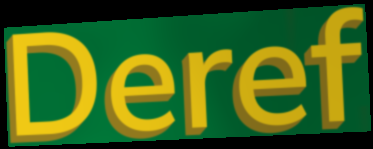
Deref